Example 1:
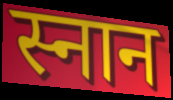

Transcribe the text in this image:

स्नान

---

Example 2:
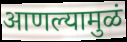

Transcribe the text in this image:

आणल्यामुळं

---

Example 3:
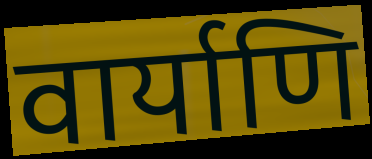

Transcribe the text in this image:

वार्याणि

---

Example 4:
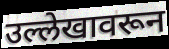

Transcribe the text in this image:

उल्लेखावरून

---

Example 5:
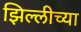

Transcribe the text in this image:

झिल्लीच्या